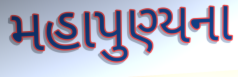
મહાપુણ્યના